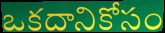
ఒకదానికోసం